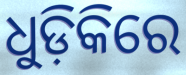
ଧୁଡ଼ିକିରେ